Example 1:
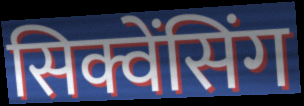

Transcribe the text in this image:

सिक्वेंसिंग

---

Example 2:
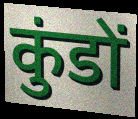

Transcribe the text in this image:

कुंडों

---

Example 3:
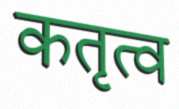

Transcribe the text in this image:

कतृत्व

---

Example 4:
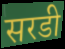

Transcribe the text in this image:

सरडी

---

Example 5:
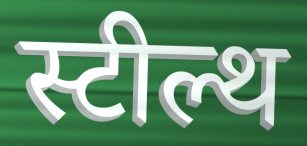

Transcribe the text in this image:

स्टील्थ